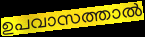
ഉപവാസത്താൽ